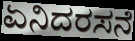
ಏನಿದರಸನೆ